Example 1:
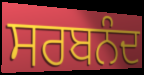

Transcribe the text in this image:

ਸਰਬਨੰਦ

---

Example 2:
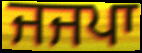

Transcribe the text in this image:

ਜਜਪਾ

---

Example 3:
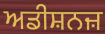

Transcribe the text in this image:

ਅਡੀਸ਼ਨਜ਼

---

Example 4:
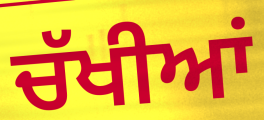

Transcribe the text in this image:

ਚੱਖੀਆਂ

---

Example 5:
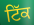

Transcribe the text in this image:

ਟਿੱਕ